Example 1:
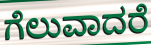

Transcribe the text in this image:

ಗೆಲುವಾದರೆ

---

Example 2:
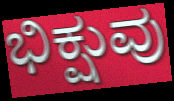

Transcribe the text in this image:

ಭಿಕ್ಷುವು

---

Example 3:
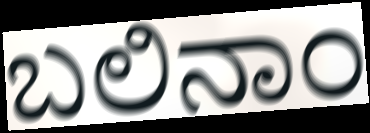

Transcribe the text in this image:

ಬಲಿನಾಂ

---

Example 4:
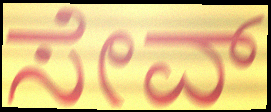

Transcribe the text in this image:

ಸೇವ್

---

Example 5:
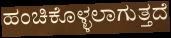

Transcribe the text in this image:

ಹಂಚಿಕೊಳ್ಳಲಾಗುತ್ತದೆ